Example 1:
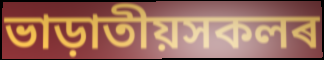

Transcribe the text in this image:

ভাড়াতীয়সকলৰ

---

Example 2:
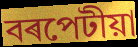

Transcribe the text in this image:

বৰপেটীয়া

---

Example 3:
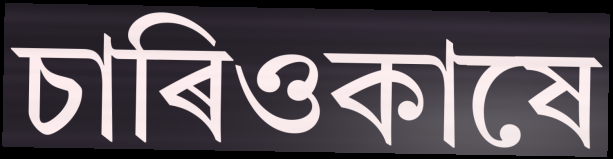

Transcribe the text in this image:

চাৰিওকাষে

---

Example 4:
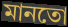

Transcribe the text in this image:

মানতো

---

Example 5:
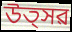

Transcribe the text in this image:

উত্সৱ